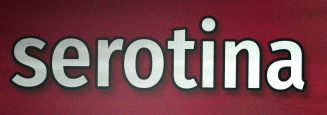
serotina